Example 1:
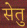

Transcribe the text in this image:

सेतु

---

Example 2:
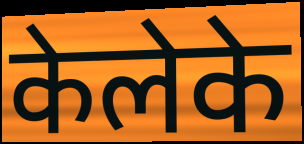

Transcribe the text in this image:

केलेके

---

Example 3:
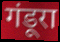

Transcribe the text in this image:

गंडूरा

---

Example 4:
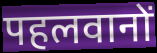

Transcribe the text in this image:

पहलवानों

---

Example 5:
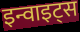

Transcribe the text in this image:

इन्वाइट्स